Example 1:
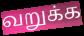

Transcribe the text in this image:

வறுக்க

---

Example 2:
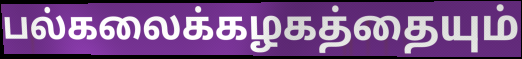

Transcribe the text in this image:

பல்கலைக்கழகத்தையும்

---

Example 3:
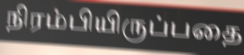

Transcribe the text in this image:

நிரம்பியிருப்பதை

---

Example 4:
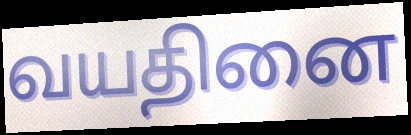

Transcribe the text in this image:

வயதினை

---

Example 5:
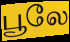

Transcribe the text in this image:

பூலே